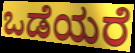
ಒಡೆಯರೆ